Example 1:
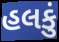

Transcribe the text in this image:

હલકું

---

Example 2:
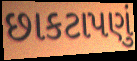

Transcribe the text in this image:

છાકટાપણું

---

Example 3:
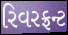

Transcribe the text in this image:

રિવરફ્રન્ટ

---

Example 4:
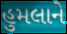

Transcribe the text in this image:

હુમલાને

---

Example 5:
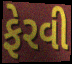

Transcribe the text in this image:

ફેરવી